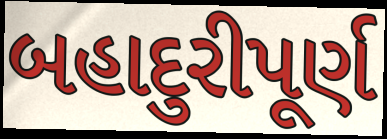
બહાદુરીપૂર્ણ